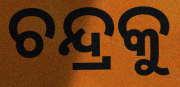
ଚନ୍ଦ୍ରକୁ